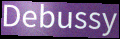
Debussy